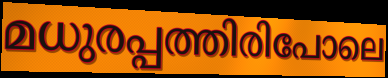
മധുരപ്പത്തിരിപോലെ